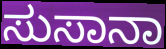
ಸುಸಾನಾ